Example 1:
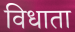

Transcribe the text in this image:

विधाता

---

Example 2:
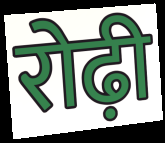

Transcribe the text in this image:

रोढ़ी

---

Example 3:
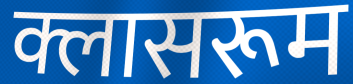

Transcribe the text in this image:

क्‍लासरूम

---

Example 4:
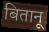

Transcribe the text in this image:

बितानू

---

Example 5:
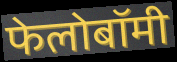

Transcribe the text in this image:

फेलोबॉमी